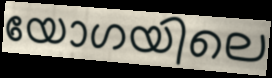
യോഗയിലെ